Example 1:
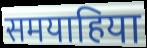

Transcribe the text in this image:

समयाहिया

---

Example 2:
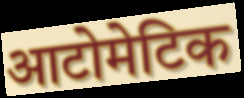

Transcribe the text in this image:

आटोमेटिक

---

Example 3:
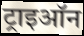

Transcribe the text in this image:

ट्राइऑन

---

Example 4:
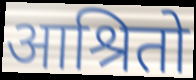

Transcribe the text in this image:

आश्रितो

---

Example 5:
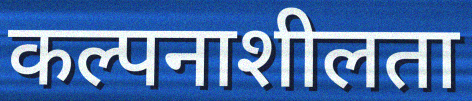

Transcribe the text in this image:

कल्पनाशीलता